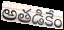
అతడికేం